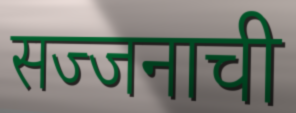
सज्जनाची